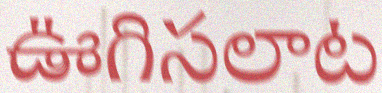
ఊగిసలాట